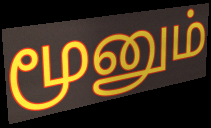
மூனும்